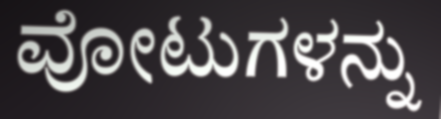
ವೋಟುಗಳನ್ನು